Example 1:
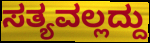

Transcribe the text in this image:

ಸತ್ಯವಲ್ಲದ್ದು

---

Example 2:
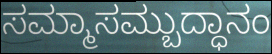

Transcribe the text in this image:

ಸಮ್ಮಾಸಮ್ಬುದ್ಧಾನಂ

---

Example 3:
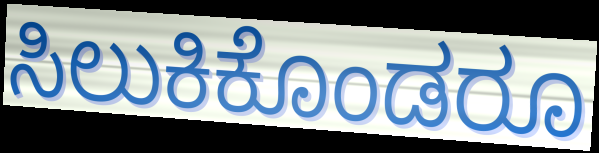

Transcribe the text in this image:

ಸಿಲುಕಿಕೊಂಡರೂ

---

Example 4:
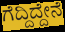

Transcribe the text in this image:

ಗೆದ್ದಿದ್ದೇನೆ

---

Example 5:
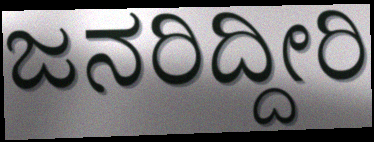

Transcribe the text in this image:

ಜನರಿದ್ದೀರಿ